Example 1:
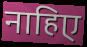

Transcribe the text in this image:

नाहिए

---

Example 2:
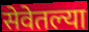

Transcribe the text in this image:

सेवेतल्या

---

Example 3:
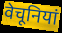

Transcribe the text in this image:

वेचूनियां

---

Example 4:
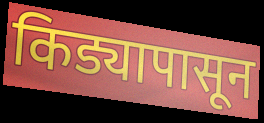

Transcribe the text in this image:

किड्यापासून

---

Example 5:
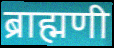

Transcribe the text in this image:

ब्राह्मणी